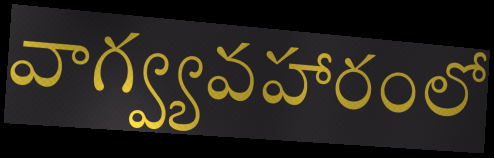
వాగ్వ్యవహారంలో